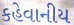
કહેવાનીય